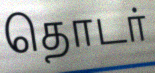
தொடர்